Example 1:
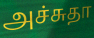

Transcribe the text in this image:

அச்சுதா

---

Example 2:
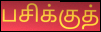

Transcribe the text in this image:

பசிக்குத்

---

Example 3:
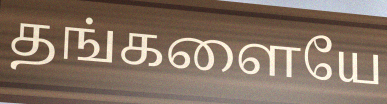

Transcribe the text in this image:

தங்களையே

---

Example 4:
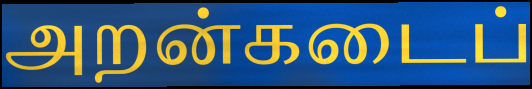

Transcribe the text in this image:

அறன்கடைப்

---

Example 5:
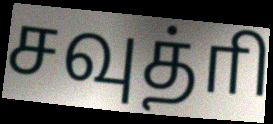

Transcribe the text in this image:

சவுத்ரி